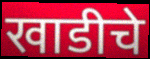
खाडीचे